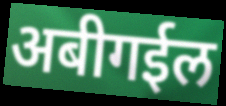
अबीगईल